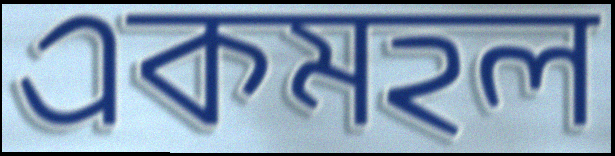
একমহল